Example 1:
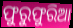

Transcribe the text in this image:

ଫୁରୁଫୁରିଆ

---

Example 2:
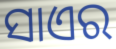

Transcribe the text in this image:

ସାଏର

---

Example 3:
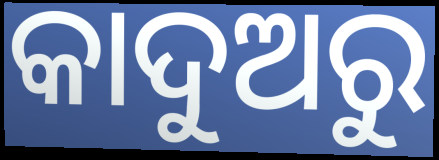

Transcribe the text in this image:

କାଦୁଅରୁ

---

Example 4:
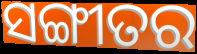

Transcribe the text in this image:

ସଙ୍ଗୀତର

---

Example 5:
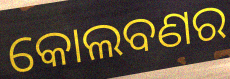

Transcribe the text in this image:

କୋଲବଣର